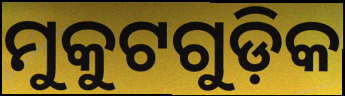
ମୁକୁଟଗୁଡ଼ିକ